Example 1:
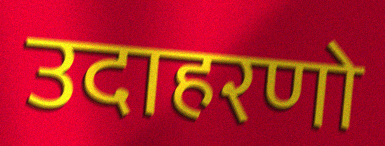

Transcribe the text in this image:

उदाहरणो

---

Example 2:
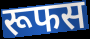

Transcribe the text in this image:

रूफस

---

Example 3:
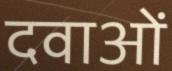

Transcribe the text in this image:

दवाओं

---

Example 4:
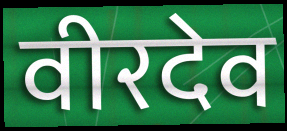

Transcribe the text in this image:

वीरदेव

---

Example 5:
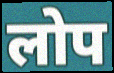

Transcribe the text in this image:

लोप